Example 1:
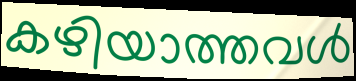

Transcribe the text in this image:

കഴിയാത്തവൾ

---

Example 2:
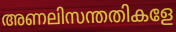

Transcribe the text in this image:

അണലിസന്തതികളേ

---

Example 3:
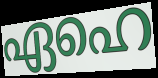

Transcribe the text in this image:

ഏഹെ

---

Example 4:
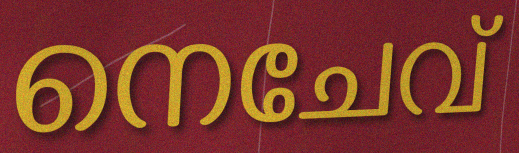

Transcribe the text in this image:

നെചേവ്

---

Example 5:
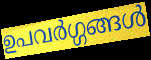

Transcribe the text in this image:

ഉപവർഗ്ഗങ്ങൾ